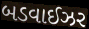
બડવાઈઝર